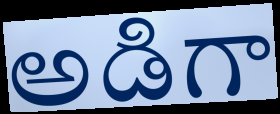
అడిగా